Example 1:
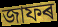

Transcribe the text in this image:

জাফৰ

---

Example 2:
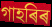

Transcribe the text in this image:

গাহৰিৰ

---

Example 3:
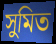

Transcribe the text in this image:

সুমিত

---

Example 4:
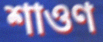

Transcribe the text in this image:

শাওণ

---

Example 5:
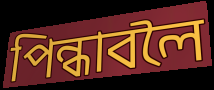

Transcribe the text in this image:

পিন্ধাবলৈ